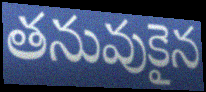
తనువుకైన